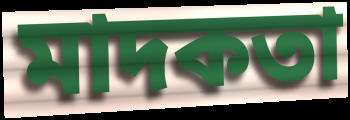
মাদকতা